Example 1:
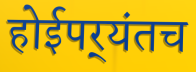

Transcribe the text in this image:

होईपर्यंतच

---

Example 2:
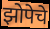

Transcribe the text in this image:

झोपेचे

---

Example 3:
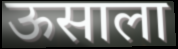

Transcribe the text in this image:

ऊसाला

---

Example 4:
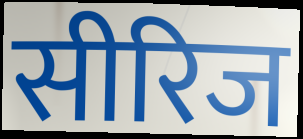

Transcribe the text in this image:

सीरिज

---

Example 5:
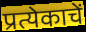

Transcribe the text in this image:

प्रत्येकाचें